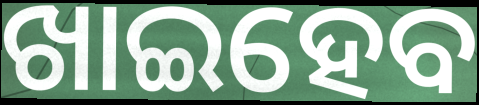
ଖାଇହେବ